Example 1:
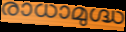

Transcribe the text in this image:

രാധാമുഗ്ദ്ധ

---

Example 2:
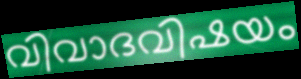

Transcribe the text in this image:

വിവാദവിഷയം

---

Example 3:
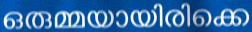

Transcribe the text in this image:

ഒരുമ്മയായിരിക്കെ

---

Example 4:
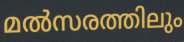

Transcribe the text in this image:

മൽസരത്തിലും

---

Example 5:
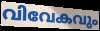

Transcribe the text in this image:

വിവേകവും